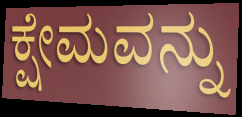
ಕ್ಷೇಮವನ್ನು